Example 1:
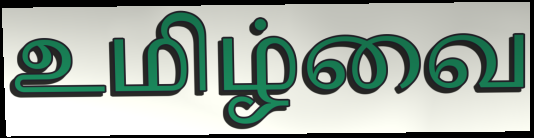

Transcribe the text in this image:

உமிழ்வை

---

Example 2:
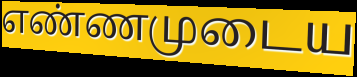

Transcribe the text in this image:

எண்ணமுடைய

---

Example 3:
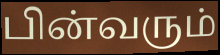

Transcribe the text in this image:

பின்வரும்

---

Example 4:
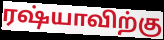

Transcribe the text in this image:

ரஷ்யாவிற்கு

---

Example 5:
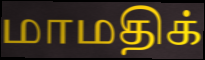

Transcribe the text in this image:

மாமதிக்